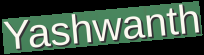
Yashwanth